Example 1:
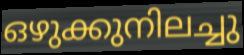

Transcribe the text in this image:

ഒഴുക്കുനിലച്ചു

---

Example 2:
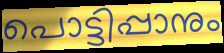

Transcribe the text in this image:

പൊട്ടിപ്പാനും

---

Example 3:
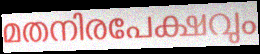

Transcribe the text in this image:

മതനിരപേക്ഷവും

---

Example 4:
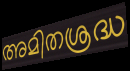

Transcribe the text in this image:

അമിതശ്രദ്ധ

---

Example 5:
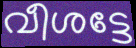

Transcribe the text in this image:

വീശട്ടേ